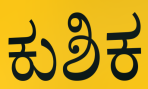
ಕುಶಿಕ